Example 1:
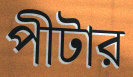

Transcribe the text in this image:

পীটার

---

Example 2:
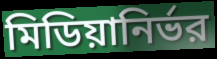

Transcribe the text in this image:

মিডিয়ানির্ভর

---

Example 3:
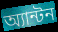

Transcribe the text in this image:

অ্যান্টন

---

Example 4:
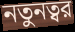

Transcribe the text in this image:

নতুনত্বর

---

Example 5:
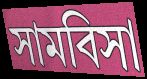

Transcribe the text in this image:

সামবিসা